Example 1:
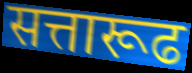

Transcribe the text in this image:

सत्तारूढ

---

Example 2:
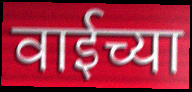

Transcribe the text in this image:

वाईच्या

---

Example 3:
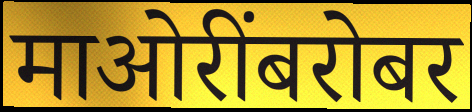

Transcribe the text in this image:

माओरींबरोबर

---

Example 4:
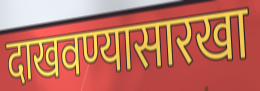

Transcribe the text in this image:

दाखवण्यासारखा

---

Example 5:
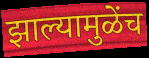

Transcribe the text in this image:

झाल्यामुळेंच